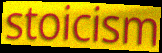
stoicism